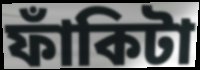
ফাঁকিটা